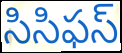
సిసిఫస్